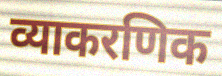
व्याकरणिक